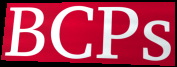
BCPs